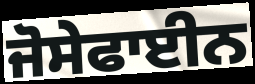
ਜੋਸੇਫਾਈਨ